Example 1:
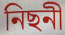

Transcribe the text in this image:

নিছনী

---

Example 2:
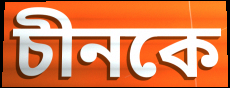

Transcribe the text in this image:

চীনকে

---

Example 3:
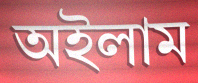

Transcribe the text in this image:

অইলাম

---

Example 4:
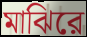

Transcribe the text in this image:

মাঝিরে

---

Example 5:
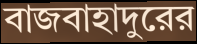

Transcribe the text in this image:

বাজবাহাদুরের